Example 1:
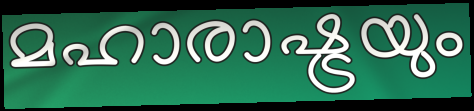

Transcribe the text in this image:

മഹാരാഷ്ട്രയും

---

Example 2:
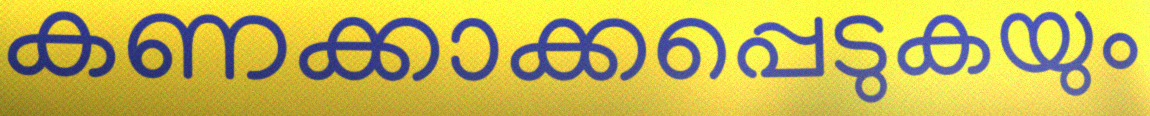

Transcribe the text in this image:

കണക്കാക്കപ്പെടുകയും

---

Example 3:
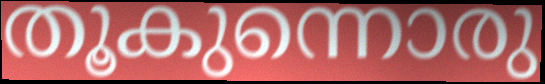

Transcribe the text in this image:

തൂകുന്നൊരു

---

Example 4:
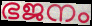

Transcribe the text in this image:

ഭജനം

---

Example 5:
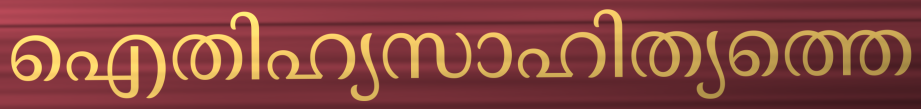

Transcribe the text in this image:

ഐതിഹ്യസാഹിത്യത്തെ